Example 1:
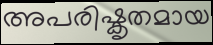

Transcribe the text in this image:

അപരിഷ്കൃതമായ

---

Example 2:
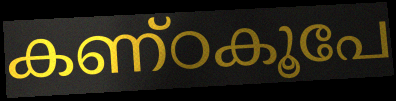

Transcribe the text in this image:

കണ്ഠകൂപേ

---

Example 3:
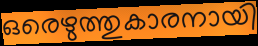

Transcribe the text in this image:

ഒരെഴുത്തുകാരനായി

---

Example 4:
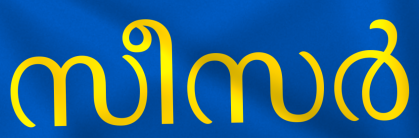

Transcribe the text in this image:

സീസർ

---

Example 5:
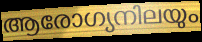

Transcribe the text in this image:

ആരോഗ്യനിലയും